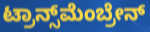
ಟ್ರಾನ್ಸ್‌ಮೆಂಬ್ರೇನ್